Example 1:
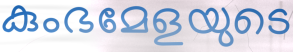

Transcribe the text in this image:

കുംഭമേളയുടെ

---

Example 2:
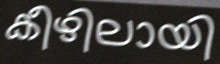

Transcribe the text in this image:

കീഴിലായി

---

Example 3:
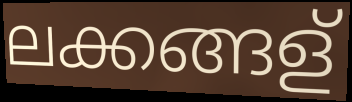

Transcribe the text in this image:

ലക്കങ്ങള്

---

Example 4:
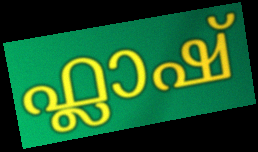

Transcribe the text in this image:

ഫ്ലാഷ്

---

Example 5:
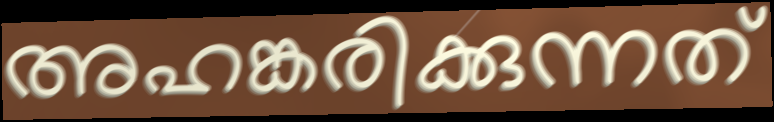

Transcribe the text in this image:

അഹങ്കരിക്കുന്നത്